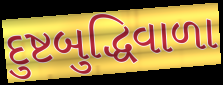
દુષ્ટબુદ્ધિવાળા